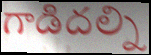
గాడిదల్ని